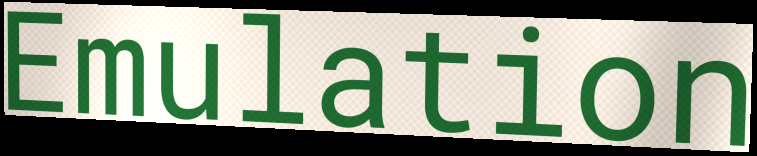
Emulation